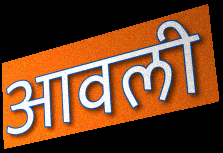
आवली